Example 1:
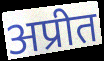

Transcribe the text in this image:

अप्रीत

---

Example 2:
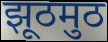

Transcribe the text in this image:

झूठमुठ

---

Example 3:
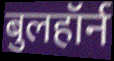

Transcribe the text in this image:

बुलहॉर्न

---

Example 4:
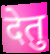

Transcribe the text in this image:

देतु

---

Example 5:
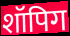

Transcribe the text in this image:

शॉपिग